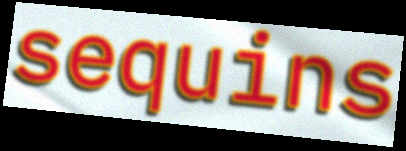
sequins